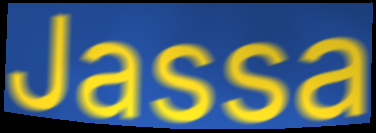
Jassa